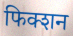
फिक्शन